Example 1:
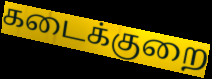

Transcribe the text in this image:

கடைக்குறை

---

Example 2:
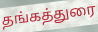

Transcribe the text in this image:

தங்கத்துரை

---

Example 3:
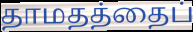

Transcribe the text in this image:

தாமதத்தைப்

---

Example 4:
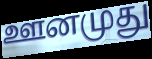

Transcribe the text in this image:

ஊனமுது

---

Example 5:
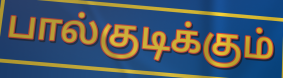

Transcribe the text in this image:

பால்குடிக்கும்